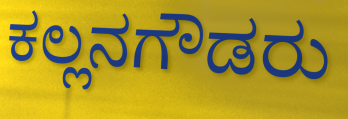
ಕಲ್ಲನಗೌಡರು